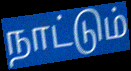
நாட்டும்